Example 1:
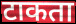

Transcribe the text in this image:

टाकता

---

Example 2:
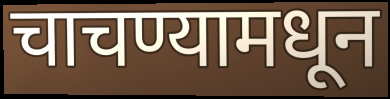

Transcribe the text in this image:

चाचण्यामधून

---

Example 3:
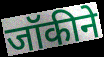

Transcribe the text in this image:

जॉकीने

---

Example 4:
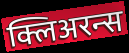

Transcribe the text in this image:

क्लिअरन्स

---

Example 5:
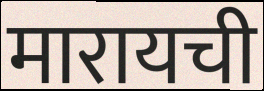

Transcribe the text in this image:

मारायची